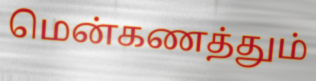
மென்கணத்தும்